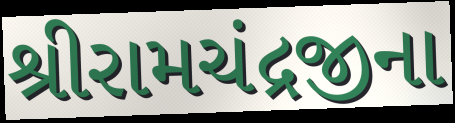
શ્રીરામચંદ્રજીના